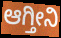
ಆಗ್ತೀನಿ